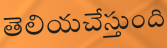
తెలియచేస్తుంది